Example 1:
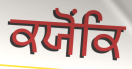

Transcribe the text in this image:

ਕਯੋਂਕਿ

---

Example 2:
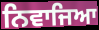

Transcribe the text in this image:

ਨਿਵਾਜਿਆ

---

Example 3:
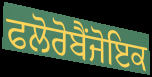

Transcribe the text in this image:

ਫਲੋਰੋਬੈਂਜੋਇਕ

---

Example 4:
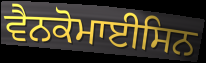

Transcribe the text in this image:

ਵੈਨਕੋਮਾਈਸਿਨ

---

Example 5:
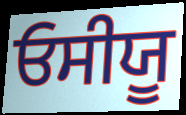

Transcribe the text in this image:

ਓਸੀਯੂ